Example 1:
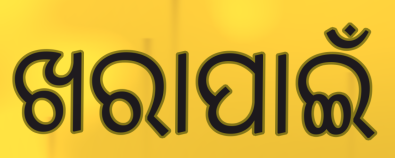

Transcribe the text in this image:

ଖରାପାଇଁ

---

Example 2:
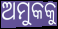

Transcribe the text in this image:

ଅମୁକକୁ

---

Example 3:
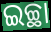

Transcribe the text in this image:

ଇଚ୍ଛା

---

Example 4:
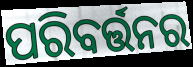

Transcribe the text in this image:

ପରିବର୍ତ୍ତନର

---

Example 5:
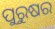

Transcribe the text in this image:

ପୁରୁଷର